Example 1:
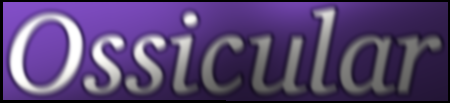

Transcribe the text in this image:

Ossicular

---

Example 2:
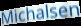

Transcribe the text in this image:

Michalsen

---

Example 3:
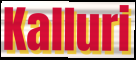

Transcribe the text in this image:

Kalluri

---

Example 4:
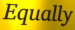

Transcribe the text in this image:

Equally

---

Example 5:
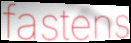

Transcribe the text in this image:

fastens